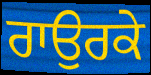
ਰਾਉਰਕੇ